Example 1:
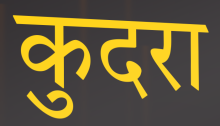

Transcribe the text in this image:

कुदरा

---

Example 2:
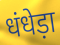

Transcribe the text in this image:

धंधेड़ा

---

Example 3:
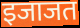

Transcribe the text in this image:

इजाजत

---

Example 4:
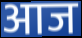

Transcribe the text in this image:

आज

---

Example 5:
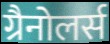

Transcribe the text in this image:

ग्रैनोलर्स